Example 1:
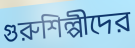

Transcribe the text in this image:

গুরুশিল্পীদের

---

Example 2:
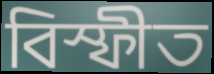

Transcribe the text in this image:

বিস্ফীত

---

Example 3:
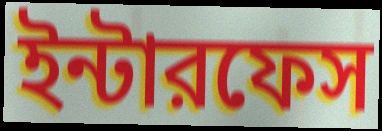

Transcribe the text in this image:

ইন্টারফেস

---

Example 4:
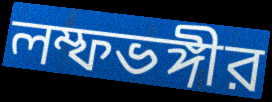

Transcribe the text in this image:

লম্ফভঙ্গীর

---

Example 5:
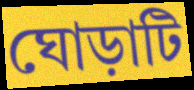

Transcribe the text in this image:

ঘোড়াটি